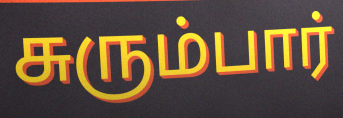
சுரும்பார்